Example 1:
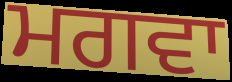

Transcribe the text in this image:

ਮਗਵਾ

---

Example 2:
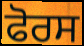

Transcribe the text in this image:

ਫੋਰਸ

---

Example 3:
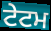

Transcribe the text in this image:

ਟੇਟਮ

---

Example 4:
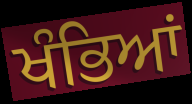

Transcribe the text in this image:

ਖੰਭਿਆਂ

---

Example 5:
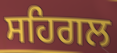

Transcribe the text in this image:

ਸਹਿਗਲ